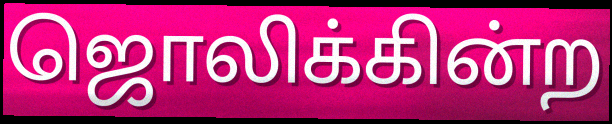
ஜொலிக்கின்ற